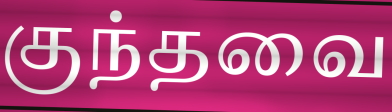
குந்தவை